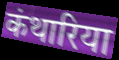
कंथारिया